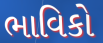
ભાવિકો